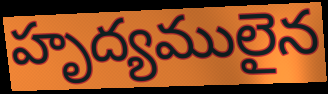
హృద్యములైన